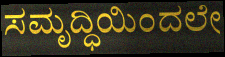
ಸಮೃದ್ಧಿಯಿಂದಲೇ